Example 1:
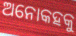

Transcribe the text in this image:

ଅନୋକହକୁ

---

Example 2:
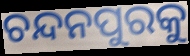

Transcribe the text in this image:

ଚନ୍ଦନପୁରକୁ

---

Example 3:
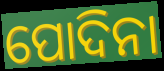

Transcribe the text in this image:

ପୋଦିନା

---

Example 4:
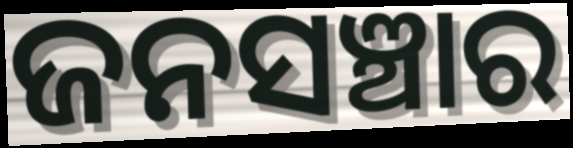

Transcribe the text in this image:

ଜନସଞ୍ଚାର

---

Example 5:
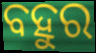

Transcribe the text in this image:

ବହୁର